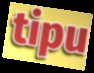
tipu